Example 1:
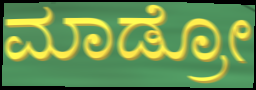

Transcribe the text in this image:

ಮಾಡ್ರೋ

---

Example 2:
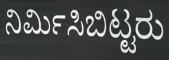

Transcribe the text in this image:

ನಿರ್ಮಿಸಿಬಿಟ್ಟರು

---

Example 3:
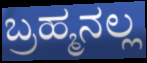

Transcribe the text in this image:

ಬ್ರಹ್ಮನಲ್ಲ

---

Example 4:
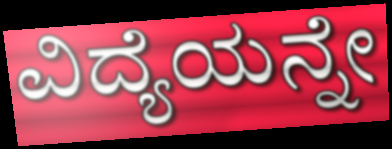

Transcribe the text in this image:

ವಿದ್ಯೆಯನ್ನೇ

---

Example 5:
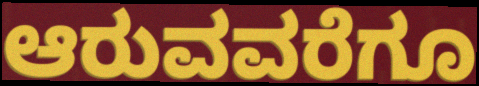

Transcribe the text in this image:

ಆರುವವರೆಗೂ